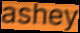
ashey